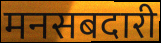
मनसबदारी